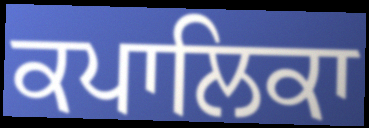
ਕਪਾਲਿਕਾ